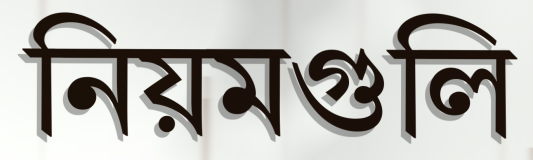
নিয়মগুলি